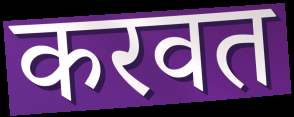
करवत